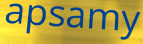
apsamy